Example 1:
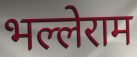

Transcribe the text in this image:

भल्लेराम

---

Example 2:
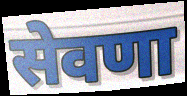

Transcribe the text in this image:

सेवणा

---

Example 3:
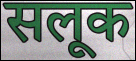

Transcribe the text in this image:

सलूक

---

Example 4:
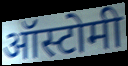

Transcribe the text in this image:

ऑस्टोमी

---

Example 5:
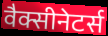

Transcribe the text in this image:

वैक्सीनेटर्स